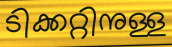
ടിക്കറ്റിനുള്ള